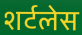
शर्टलेस